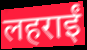
लहराईं